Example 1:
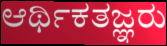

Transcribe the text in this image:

ಆರ್ಥಿಕತಜ್ಞರು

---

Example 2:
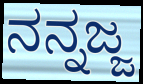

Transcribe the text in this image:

ನನ್ನಜ್ಜ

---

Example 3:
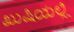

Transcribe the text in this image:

ಖುಷಿಯಲ್ಲಿ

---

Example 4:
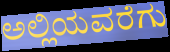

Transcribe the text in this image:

ಅಲ್ಲಿಯವರೆಗು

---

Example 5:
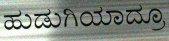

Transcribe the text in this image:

ಹುಡುಗಿಯಾದ್ರೂ